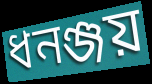
ধনঞ্জয়